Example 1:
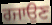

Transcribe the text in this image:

ਰਜਾਉਣ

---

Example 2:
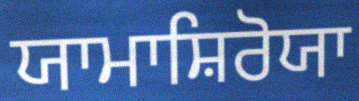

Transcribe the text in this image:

ਯਾਮਾਸ਼ਿਰੋਯਾ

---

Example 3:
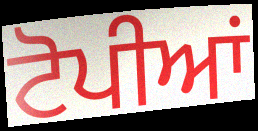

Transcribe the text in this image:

ਟੋਪੀਆਂ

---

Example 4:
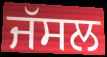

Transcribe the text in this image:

ਜੱਸਲ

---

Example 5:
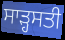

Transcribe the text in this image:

ਸਾੜ੍ਹਸਤੀ